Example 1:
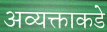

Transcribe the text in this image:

अव्यक्ताकडे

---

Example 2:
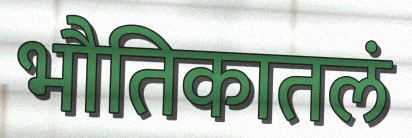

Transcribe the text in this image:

भौतिकातलं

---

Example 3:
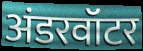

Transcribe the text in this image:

अंडरवॉटर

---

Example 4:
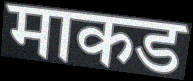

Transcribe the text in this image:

माकड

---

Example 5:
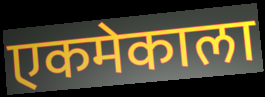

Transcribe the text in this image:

एकमेकाला